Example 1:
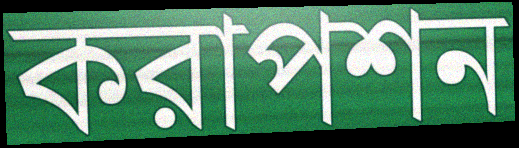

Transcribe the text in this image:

করাপশন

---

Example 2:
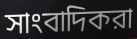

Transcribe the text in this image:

সাংবাদিকরা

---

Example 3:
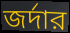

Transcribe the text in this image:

জর্দার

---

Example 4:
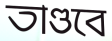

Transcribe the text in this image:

তাণ্ডবে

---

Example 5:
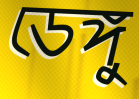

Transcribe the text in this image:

ডেঙ্গু